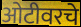
ओटीवरचे